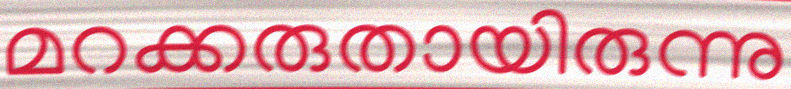
മറക്കരുതായിരുന്നു